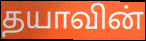
தயாவின்